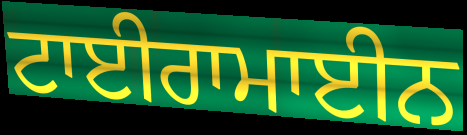
ਟਾਈਰਾਮਾਈਨ